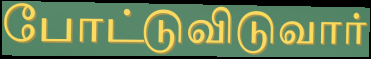
போட்டுவிடுவார்